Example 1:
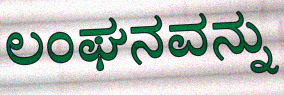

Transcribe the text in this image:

ಲಂಘನವನ್ನು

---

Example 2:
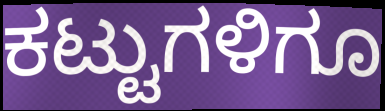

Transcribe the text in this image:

ಕಟ್ಟುಗಳಿಗೂ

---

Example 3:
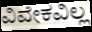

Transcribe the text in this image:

ವಿವೇಕವಿಲ್ಲ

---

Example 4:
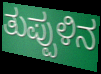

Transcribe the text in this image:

ತುಪ್ಪುಳಿನ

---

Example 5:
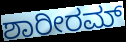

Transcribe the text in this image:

ಶಾರೀರಮ್